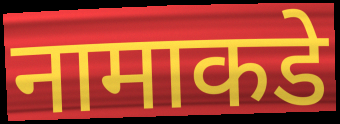
नामाकडे